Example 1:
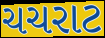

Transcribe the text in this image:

ચચરાટ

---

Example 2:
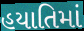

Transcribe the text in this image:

હયાતિમાં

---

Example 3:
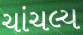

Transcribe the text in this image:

ચાંચલ્ય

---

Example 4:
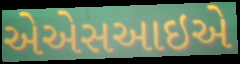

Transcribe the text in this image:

એએસઆઇએ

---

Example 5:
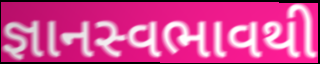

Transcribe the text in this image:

જ્ઞાનસ્વભાવથી